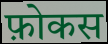
फ़ोकस